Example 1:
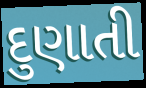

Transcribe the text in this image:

દુણાતી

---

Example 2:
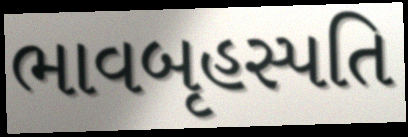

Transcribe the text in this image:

ભાવબૃહસ્પતિ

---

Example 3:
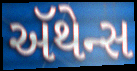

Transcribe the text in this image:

ઍથેન્સ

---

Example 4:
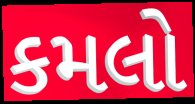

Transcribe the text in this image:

કમલો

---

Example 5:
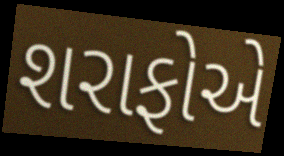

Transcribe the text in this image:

શરાફોએ